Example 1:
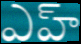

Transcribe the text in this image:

ఎహ్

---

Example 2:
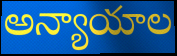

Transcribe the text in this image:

అన్యాయాల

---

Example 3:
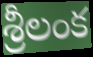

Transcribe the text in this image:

శ్రీలంక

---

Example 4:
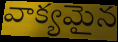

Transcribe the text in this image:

వాక్యమైన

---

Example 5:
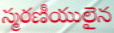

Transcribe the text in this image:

స్మరణీయులైన